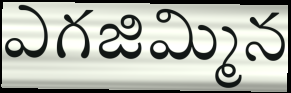
ఎగజిమ్మిన